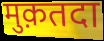
मुक़तदा